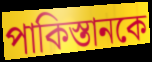
পাকিস্তানকে